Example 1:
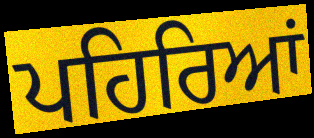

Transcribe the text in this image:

ਪਹਿਰਿਆਂ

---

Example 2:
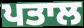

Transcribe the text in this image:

ਪਤਾਲ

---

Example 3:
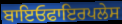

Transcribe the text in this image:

ਬਾਇਓਫਾਇਰਪਲੇਸ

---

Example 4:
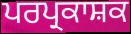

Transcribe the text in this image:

ਪਰਪ੍ਰਕਾਸ਼ਕ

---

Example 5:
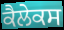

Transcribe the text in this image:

ਕੈਲੇਕਸ